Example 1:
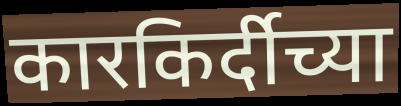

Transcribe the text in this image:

कारकिर्दीच्या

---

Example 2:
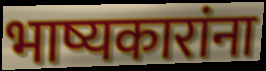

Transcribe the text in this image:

भाष्यकारांना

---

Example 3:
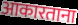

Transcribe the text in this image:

आकारताना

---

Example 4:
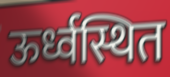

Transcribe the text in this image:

ऊर्ध्वस्थित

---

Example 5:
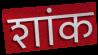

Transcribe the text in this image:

शांक